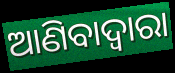
ଆଣିବାଦ୍ୱାରା